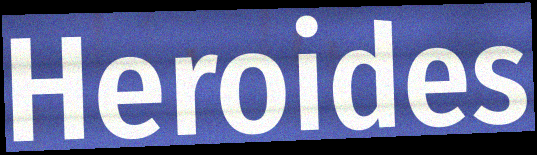
Heroides